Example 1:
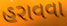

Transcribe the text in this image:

હરાવવા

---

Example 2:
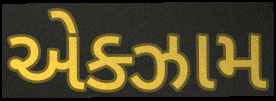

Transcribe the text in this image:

એક્ઝામ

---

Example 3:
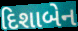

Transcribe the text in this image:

દિશાબેન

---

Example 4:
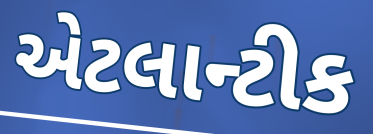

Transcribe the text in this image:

એટલાન્ટીક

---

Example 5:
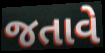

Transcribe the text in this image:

જતાવે